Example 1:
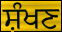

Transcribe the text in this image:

ਸ਼ੰਖਣ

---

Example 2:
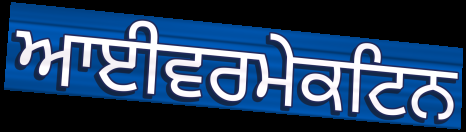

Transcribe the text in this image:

ਆਈਵਰਮੇਕਟਿਨ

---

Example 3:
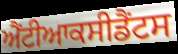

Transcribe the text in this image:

ਐਂਟੀਆਕਸੀਡੈਂਟਸ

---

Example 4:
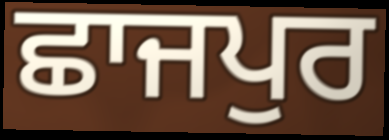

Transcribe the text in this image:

ਛਾਜਪੁਰ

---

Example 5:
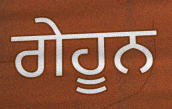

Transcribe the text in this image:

ਗੇਹੂਨ